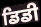
ਡਿਡੀ